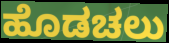
ಹೊಡಚಲು